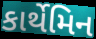
કાર્થેમિન